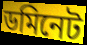
ডমিনেট